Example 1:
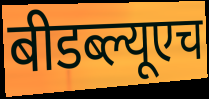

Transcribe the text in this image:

बीडब्ल्यूएच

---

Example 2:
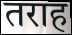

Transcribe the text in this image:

तराह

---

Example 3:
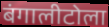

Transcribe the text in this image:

बंगालीटोला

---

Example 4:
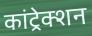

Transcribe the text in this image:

कांट्रेक्शन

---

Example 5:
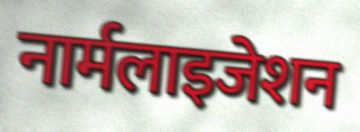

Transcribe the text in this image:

नार्मलाइजेशन